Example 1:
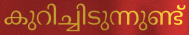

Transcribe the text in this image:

കുറിച്ചിടുന്നുണ്ട്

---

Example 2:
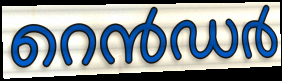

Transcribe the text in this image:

റെൻഡർ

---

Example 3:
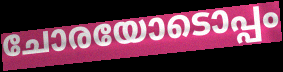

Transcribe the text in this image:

ചോരയോടൊപ്പം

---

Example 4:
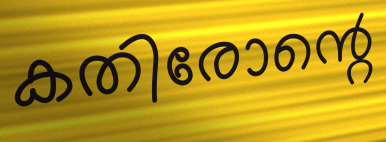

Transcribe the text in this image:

കതിരോന്റെ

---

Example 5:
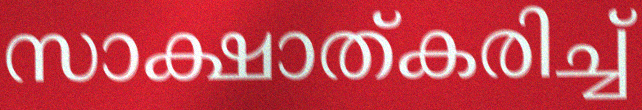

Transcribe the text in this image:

സാക്ഷാത്കരിച്ച്